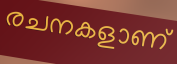
രചനകളാണ്